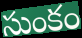
సుంకం